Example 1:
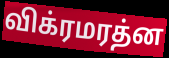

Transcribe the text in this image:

விக்ரமரத்ன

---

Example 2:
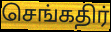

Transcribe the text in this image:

செங்கதிர்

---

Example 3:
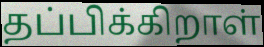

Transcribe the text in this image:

தப்பிக்கிறாள்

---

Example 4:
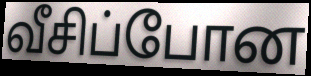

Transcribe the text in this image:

வீசிப்போன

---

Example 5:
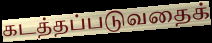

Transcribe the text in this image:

கடத்தப்படுவதைக்